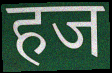
हज